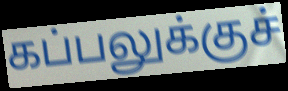
கப்பலுக்குச்